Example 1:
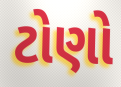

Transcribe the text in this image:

ટોણો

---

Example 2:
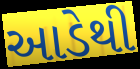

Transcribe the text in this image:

આડેથી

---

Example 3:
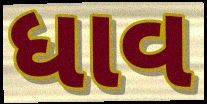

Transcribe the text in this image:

ધાવ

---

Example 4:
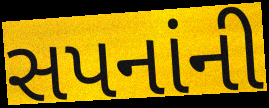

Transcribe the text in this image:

સપનાંની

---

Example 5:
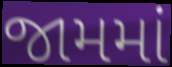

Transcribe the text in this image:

જામમાં